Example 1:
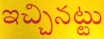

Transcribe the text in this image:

ఇచ్చినట్టు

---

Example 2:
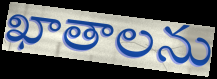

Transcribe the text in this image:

ఖాతాలను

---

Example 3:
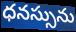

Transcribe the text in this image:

ధనస్సును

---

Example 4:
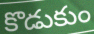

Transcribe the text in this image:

కొడుకుం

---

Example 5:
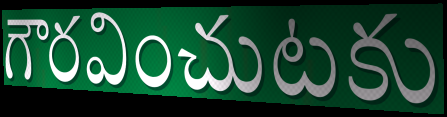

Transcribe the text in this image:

గౌరవించుటకు